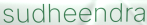
sudheendra